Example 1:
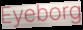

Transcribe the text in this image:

Eyeborg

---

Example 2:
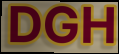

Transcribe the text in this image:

DGH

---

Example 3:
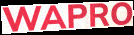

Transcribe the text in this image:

WAPRO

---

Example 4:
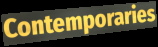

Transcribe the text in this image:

Contemporaries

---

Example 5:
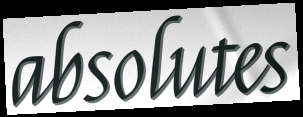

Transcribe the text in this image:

absolutes